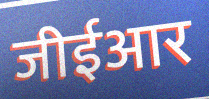
जीईआर